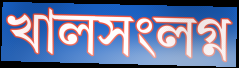
খালসংলগ্ন